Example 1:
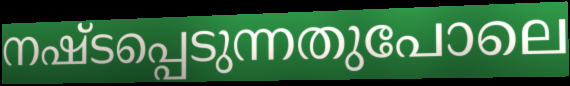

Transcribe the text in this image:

നഷ്ടപ്പെടുന്നതുപോലെ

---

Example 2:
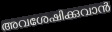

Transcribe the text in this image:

അവശേഷിക്കുവാൻ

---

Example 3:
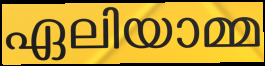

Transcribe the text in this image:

ഏലിയാമ്മ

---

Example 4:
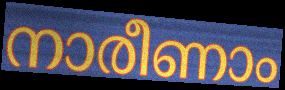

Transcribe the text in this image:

നാരീണാം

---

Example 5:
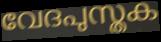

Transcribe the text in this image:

വേദപുസ്തക